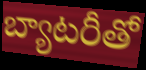
బ్యాటరీతో